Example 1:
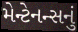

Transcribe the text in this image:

મેન્ટેનન્સનું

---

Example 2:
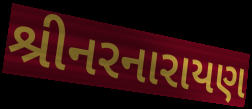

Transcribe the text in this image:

શ્રીનરનારાયણ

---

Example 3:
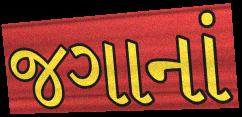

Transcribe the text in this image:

જગાનાં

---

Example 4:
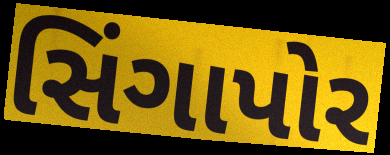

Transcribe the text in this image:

સિંગાપોર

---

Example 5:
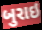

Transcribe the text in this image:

બુરાઇ